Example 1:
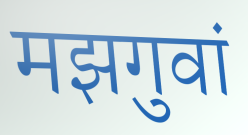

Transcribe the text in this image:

मझगुवां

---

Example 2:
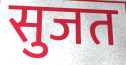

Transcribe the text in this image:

सुजत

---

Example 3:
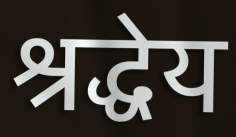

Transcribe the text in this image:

श्रद्धेय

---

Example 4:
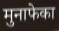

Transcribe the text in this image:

मुनाफेका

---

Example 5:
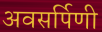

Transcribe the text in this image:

अवसर्पिणी